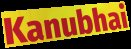
Kanubhai